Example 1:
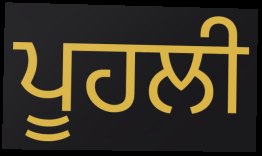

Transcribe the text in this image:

ਪੂਹਲੀ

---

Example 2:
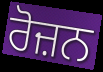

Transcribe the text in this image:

ਰੋਜ਼ਨ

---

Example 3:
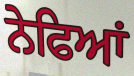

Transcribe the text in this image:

ਨੇਫਿਆਂ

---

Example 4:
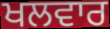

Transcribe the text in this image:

ਖਲਵਾਰ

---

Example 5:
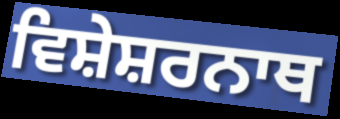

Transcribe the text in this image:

ਵਿਸ਼ੇਸ਼ਰਨਾਥ